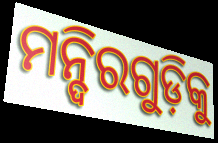
ମନ୍ଦିରଗୁଡ଼ିକୁ